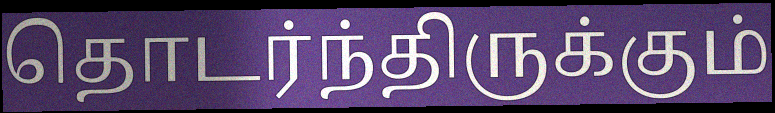
தொடர்ந்திருக்கும்